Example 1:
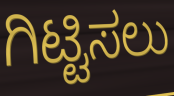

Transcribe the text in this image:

ಗಿಟ್ಟಿಸಲು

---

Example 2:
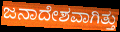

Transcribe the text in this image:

ಜನಾದೇಶವಾಗಿತ್ತು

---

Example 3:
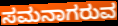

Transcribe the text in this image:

ಸಮನಾಗರುವ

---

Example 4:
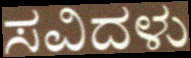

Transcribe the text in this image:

ಸವಿದಳು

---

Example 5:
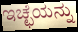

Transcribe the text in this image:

ಇಚ್ಛೆಯನ್ನು